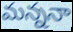
మన్ననా